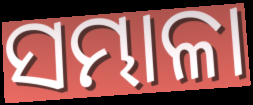
ସମ୍ଭାଳା